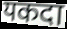
यकदा